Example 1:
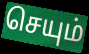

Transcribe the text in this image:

செயும்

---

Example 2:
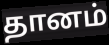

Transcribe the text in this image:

தானம்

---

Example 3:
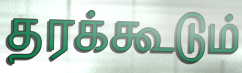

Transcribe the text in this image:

தரக்கூடும்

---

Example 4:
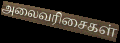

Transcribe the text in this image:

அலைவரிசைகள்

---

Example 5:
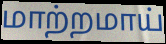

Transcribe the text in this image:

மாற்றமாய்